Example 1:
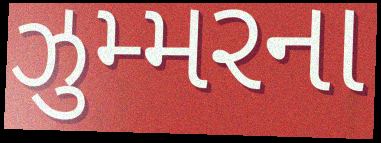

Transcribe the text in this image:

ઝુમ્મરના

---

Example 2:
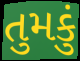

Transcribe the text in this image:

તુમકું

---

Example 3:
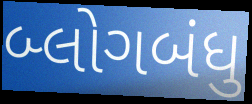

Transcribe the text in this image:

બ્લોગબંધુ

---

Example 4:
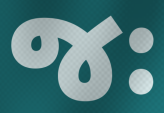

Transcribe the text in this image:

જઃ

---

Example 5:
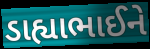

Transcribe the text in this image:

ડાહ્યાભાઈને